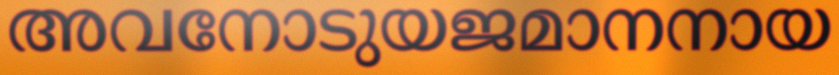
അവനോടുയജമാനനായ